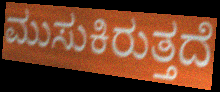
ಮುಸುಕಿರುತ್ತದೆ